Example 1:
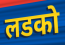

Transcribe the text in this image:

लडको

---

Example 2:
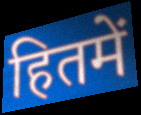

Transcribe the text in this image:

हितमें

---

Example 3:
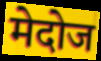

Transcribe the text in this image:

मेदोज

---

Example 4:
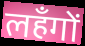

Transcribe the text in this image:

लहँगों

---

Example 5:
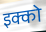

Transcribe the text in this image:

इक्को